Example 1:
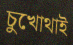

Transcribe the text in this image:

চুখোথাই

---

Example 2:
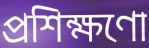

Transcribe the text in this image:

প্ৰশিক্ষণো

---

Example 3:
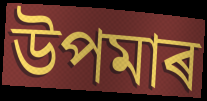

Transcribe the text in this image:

উপমাৰ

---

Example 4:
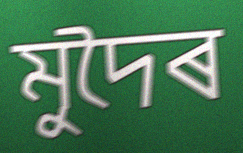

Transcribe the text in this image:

মুদৈৰ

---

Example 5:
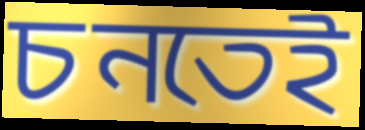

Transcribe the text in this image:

চনতেই